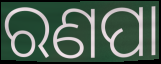
ରଣପା